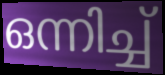
ഒന്നിച്ച്